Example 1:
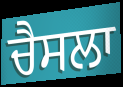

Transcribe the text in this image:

ਚੈਸਲਾ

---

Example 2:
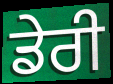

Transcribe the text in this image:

ਡੇਰੀ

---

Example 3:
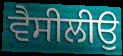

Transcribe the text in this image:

ਵੈਸੀਲੀਉ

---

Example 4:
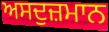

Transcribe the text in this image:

ਅਸਦੁਜ਼ਮਾਨ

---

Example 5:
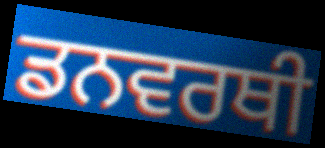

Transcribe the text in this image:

ਡਨਵਰਥੀ